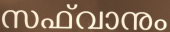
സഫ്‌വാനും